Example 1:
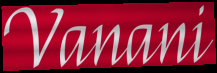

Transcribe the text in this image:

Vanani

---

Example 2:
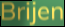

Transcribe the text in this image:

Brijen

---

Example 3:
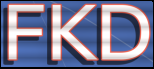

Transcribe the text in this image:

FKD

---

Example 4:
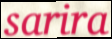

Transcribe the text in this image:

sarira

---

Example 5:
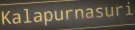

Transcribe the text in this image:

Kalapurnasuri